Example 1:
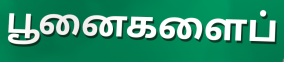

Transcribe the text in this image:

பூனைகளைப்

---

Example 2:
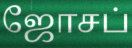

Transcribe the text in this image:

ஜோசப்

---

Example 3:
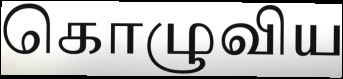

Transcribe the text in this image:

கொழுவிய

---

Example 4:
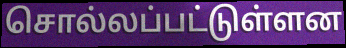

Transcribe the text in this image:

சொல்லப்பட்டுள்ளன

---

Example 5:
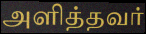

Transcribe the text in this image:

அளித்தவர்